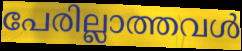
പേരില്ലാത്തവൾ